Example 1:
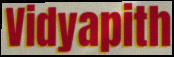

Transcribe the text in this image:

Vidyapith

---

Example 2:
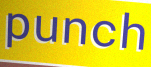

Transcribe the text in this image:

punch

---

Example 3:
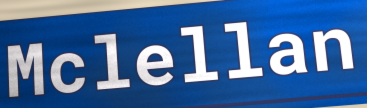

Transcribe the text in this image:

Mclellan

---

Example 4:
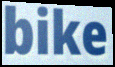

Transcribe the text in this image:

bike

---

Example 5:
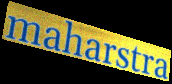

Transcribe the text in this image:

maharstra